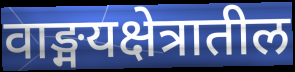
वाङ्मयक्षेत्रातील